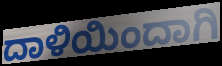
ದಾಳಿಯಿಂದಾಗಿ